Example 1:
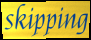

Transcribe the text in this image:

skipping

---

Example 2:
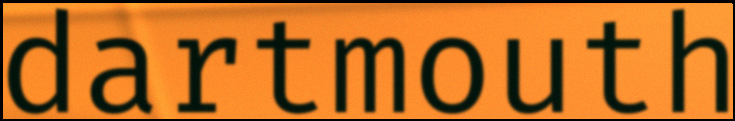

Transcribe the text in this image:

dartmouth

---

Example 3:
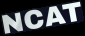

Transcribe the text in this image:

NCAT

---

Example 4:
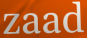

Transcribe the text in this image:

zaad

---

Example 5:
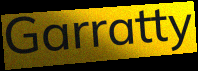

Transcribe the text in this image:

Garratty